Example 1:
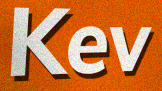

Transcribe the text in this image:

Kev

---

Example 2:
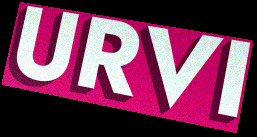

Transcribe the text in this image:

URVI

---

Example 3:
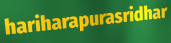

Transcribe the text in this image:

hariharapurasridhar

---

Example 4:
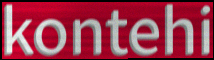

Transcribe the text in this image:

kontehi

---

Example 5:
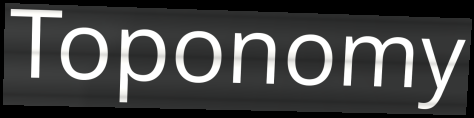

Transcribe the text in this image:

Toponomy